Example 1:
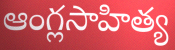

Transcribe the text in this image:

ఆంగ్లసాహిత్య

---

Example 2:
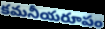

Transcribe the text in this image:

కమనీయరూపం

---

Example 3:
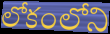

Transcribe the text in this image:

లోకంలోని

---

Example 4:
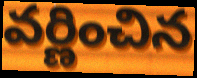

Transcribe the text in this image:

వర్ణించిన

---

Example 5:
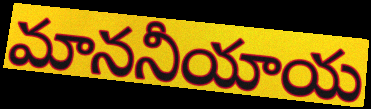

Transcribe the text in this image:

మాననీయాయ